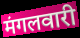
मंगलवारी